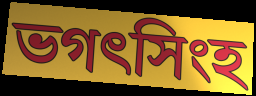
ভগৎসিংহ